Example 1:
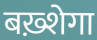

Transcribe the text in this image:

बख़्शेगा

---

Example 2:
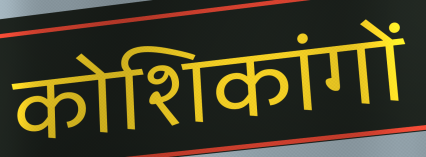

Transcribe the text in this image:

कोशिकांगों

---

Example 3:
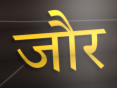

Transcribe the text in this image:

जौर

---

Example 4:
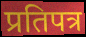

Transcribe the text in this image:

प्रतिपत्र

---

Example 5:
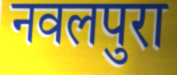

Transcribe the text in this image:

नवलपुरा